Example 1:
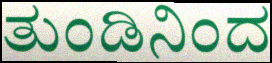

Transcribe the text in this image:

ತುಂಡಿನಿಂದ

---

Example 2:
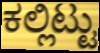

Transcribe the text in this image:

ಕಲ್ಲಿಟ್ಟು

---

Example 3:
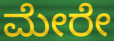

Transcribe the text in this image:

ಮೇರೇ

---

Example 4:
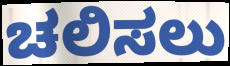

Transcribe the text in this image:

ಚಲಿಸಲು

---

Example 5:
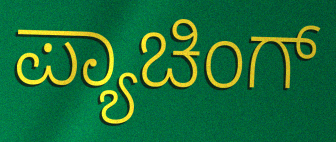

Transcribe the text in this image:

ಪ್ಯಾಚಿಂಗ್